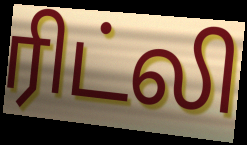
ரிட்லி